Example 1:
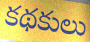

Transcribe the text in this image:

కథకులు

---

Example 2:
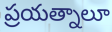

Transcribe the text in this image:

ప్రయత్నాలూ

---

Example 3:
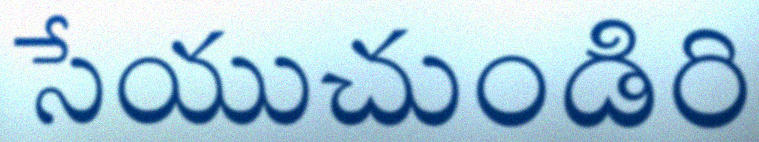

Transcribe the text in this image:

సేయుచుండిరి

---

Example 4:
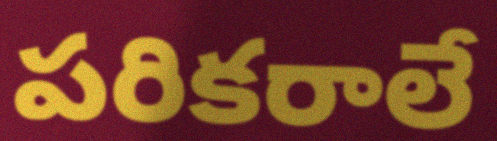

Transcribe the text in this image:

పరికరాలే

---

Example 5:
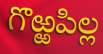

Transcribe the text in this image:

గొఱ్ఱపిల్ల